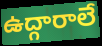
ఉద్గారాలే